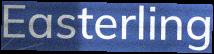
Easterling